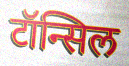
टॉन्सिल